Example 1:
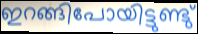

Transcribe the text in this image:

ഇറങ്ങിപോയിട്ടുണ്ടു്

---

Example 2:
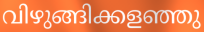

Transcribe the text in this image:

വിഴുങ്ങിക്കളഞ്ഞു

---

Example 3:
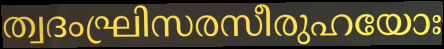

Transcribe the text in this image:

ത്വദംഘ്രിസരസീരുഹയോഃ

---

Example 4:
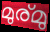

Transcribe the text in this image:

മുര്മു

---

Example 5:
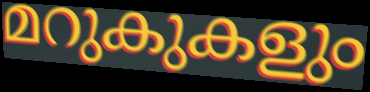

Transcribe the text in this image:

മറുകുകളും